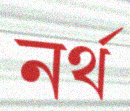
নৰ্থ